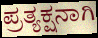
ಪ್ರತ್ಯಕ್ಷನಾಗಿ